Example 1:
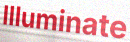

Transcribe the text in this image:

Illuminate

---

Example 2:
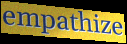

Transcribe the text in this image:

empathize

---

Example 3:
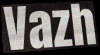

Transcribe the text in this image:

Vazh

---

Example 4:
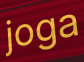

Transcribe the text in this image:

joga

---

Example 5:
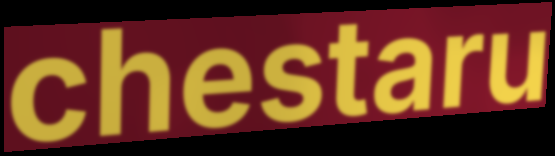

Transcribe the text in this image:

chestaru